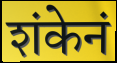
शंकेनं